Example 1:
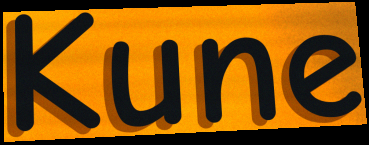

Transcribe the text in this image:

Kune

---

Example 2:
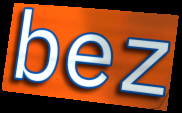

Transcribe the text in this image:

bez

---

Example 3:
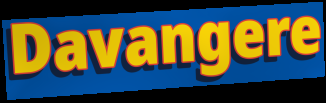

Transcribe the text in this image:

Davangere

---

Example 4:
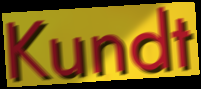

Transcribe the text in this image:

Kundt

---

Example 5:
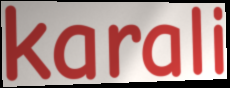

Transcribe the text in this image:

karali